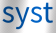
syst